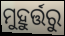
ମୁହୁର୍ତ୍ତରୁ